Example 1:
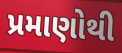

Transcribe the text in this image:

પ્રમાણોથી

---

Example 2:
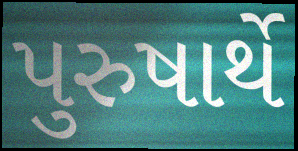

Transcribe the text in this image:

પુરુષાર્થે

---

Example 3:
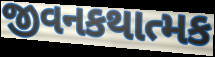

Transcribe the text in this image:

જીવનકથાત્મક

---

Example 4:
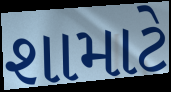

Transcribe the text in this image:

શામાટે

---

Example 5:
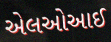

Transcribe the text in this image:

એલઓઆઈ